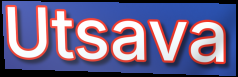
Utsava